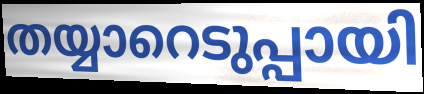
തയ്യാറെടുപ്പായി